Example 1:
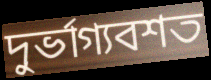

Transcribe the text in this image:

দুর্ভাগ্যবশত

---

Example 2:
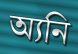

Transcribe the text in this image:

অ্যনি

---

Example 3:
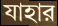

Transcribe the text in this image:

যাহার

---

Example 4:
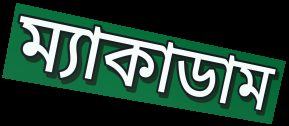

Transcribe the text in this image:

ম্যাকাডাম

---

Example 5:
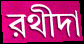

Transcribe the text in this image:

রথীদা